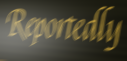
Reportedly